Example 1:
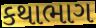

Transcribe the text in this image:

કથાભાગ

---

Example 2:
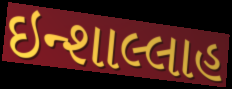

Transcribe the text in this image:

ઇન્શાલ્લાહ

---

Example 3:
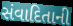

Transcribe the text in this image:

સંવાદિતાની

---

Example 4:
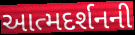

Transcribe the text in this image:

આત્મદર્શનની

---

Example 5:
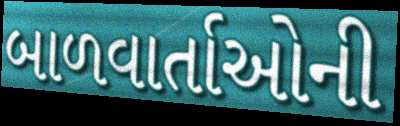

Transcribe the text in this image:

બાળવાર્તાઓની